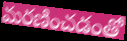
మరణించడంతో